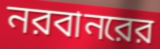
নরবানরের